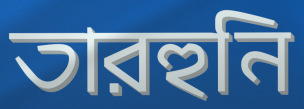
তারহুনি